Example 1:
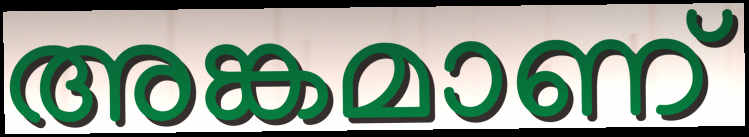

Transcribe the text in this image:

അങ്കമാണ്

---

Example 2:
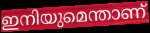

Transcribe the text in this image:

ഇനിയുമെന്താണ്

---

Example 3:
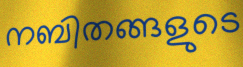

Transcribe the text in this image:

നബിതങ്ങളുടെ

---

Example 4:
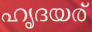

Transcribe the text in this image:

ഹൃദയര്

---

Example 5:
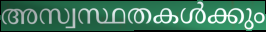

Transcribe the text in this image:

അസ്വസ്ഥതകൾക്കും